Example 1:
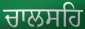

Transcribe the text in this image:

ਚਾਲਸਹਿ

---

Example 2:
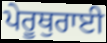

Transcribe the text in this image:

ਪੇਰੂਥੁਰਾਈ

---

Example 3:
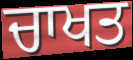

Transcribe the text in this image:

ਚਾਖਤ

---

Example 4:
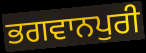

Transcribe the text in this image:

ਭਗਵਾਨਪੁਰੀ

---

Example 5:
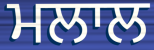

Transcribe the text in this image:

ਮਲਾਲ